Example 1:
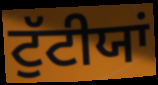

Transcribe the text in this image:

ਟੁੱਟੀਯਾਂ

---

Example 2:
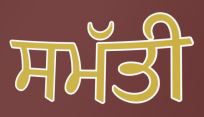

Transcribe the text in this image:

ਸਮੱਤੀ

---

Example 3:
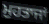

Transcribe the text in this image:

ਮੁਹਤਾਜਾਂ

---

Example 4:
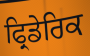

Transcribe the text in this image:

ਫ੍ਰਿਡੇਰਿਕ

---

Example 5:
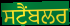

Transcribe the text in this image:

ਸਟੈਂਬਲਰ